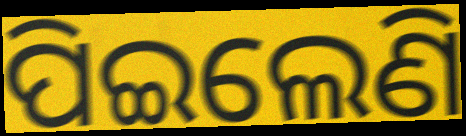
ପିଇଲେଣି